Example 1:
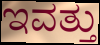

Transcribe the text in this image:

ಇವತ್ತು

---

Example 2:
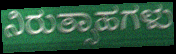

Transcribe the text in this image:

ನಿರುತ್ಸಾಹಗಳು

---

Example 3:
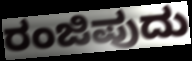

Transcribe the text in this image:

ರಂಜಿಪುದು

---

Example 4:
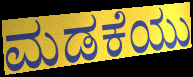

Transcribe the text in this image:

ಮಡಕೆಯು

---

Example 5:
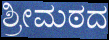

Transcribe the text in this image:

ಶ್ರೀಮಠದ